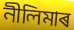
নীলিমাৰ